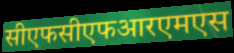
सीएफसीएफआरएमएस